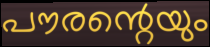
പൗരന്റെയും